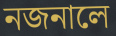
নজনালে